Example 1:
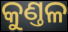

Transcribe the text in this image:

କୁଣ୍ତଳ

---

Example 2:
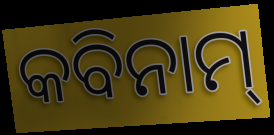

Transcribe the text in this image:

କବିନାମ୍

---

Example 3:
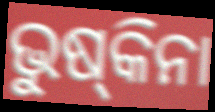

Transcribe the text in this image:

ଭୁଷ୍‌କିନା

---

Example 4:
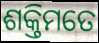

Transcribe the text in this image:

ଶକ୍ତିମତେ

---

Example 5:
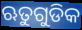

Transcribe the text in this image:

ଋତୁଗୁଡିକ